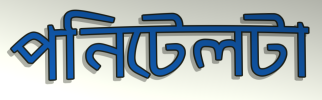
পনিটেলটা